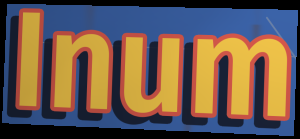
Inum